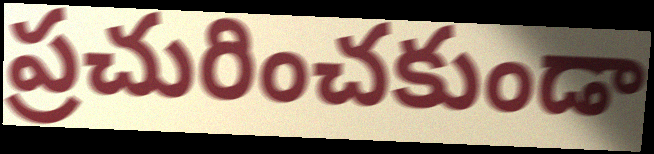
ప్రచురించకుండా